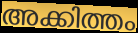
അക്കിത്തം